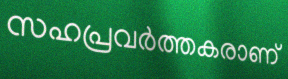
സഹപ്രവർത്തകരാണ്